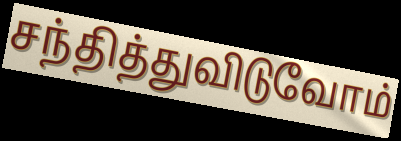
சந்தித்துவிடுவோம்